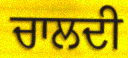
ਚਾਲਦੀ